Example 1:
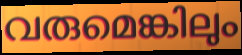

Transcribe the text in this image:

വരുമെങ്കിലും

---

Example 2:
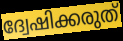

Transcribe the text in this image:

ദ്വേഷിക്കരുത്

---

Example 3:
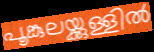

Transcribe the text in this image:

പൂങ്കുലയ്ക്കുള്ളിൽ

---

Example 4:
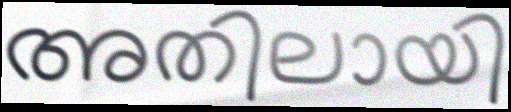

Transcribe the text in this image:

അതിലായി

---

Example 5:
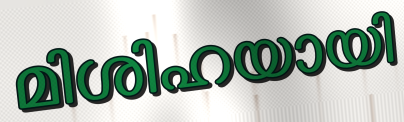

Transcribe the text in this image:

മിശിഹയായി